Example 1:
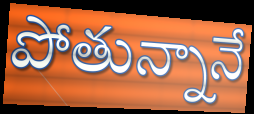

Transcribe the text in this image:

పోతున్నానే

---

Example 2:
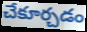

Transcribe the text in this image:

చేకూర్చడం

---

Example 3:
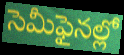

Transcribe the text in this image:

సెమీఫైనల్లో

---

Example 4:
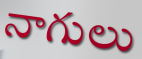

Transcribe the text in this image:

నాగులు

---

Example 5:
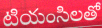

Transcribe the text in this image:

టియంసిలతో